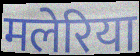
मलेरिया